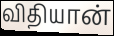
விதியான்